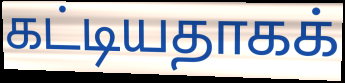
கட்டியதாகக்